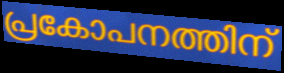
പ്രകോപനത്തിന്